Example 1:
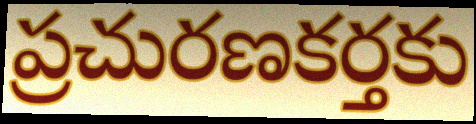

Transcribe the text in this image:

ప్రచురణకర్తకు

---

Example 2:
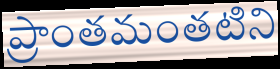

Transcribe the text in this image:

ప్రాంతమంతటిని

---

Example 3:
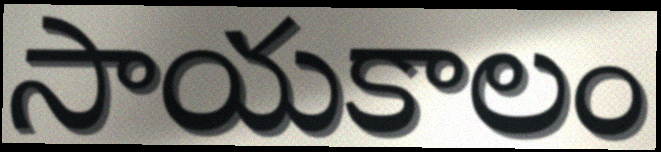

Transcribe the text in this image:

సాయకాలం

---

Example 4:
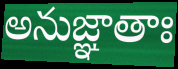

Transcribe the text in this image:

అనుజ్ఞాతాః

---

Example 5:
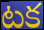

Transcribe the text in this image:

టక